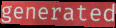
generated